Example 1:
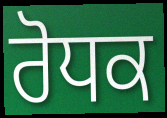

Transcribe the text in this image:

ਰੋਧਕ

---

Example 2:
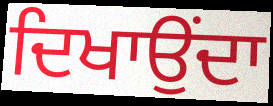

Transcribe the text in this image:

ਦਿਖਾਉਂਦਾ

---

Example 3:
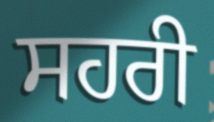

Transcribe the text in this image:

ਸਹਰੀ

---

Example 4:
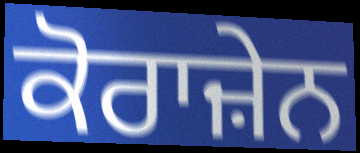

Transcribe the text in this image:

ਕੋਰਾਜ਼ੇਨ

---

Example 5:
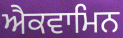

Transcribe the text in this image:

ਐਕਵਾਮਿਨ